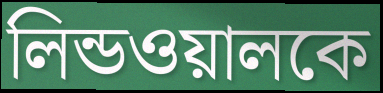
লিন্ডওয়ালকে